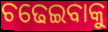
ଚଢେଇବାକୁ